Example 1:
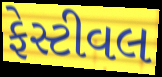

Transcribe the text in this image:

ફેસ્ટીવલ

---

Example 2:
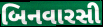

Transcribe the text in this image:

બિનવારસી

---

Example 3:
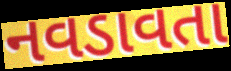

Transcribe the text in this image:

નવડાવતા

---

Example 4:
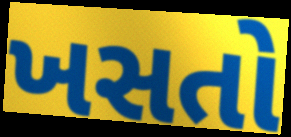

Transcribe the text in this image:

ખસતો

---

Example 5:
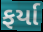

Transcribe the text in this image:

ફર્યા